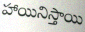
హాయినిస్తాయి